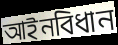
আইনবিধান